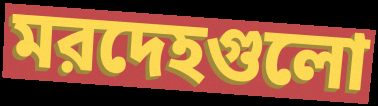
মরদেহগুলো